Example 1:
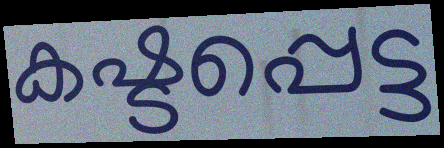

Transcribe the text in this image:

കഷ്ടപ്പെട്ട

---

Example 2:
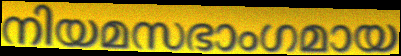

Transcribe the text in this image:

നിയമസഭാംഗമായ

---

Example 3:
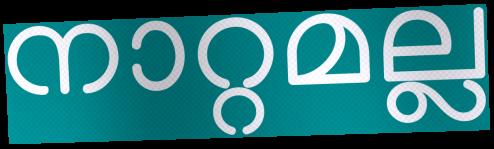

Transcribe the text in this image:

നാറ്റമല്ല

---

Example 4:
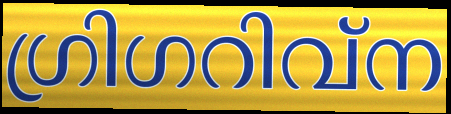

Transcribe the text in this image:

ഗ്രിഗറിവ്ന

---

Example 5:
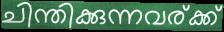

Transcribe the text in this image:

ചിന്തിക്കുന്നവര്ക്ക്